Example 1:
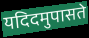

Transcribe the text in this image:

यदिदमुपासते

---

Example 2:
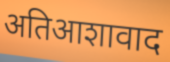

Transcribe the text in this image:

अतिआशावाद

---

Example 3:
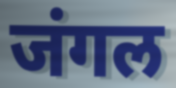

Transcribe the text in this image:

जंगल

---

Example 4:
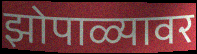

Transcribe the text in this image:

झोपाळ्यावर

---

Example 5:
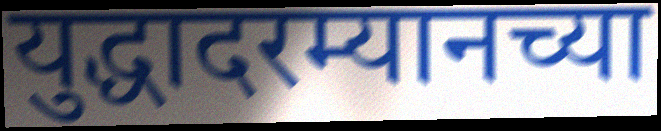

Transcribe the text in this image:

युद्धादरम्यानच्या